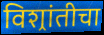
विश्रांतीचा